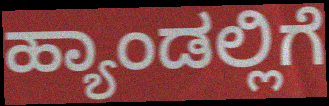
ಹ್ಯಾಂಡಲ್ಲಿಗೆ